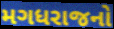
મગધરાજનો